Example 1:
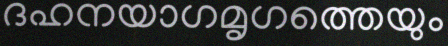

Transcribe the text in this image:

ദഹനയാഗമൃഗത്തെയും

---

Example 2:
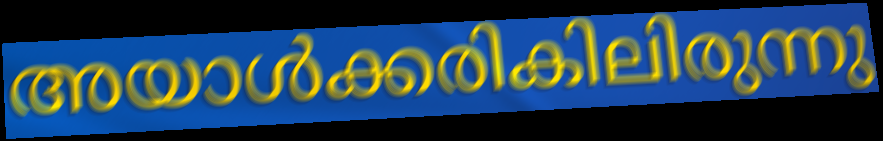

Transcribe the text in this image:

അയാൾക്കരികിലിരുന്നു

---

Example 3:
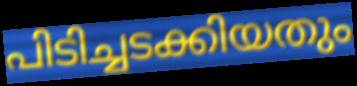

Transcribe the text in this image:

പിടിച്ചടക്കിയതും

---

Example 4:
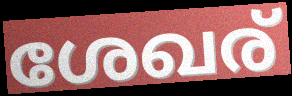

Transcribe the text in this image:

ശേഖര്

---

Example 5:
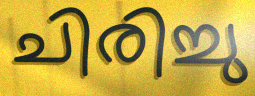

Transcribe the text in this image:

ചിരിച്ചു